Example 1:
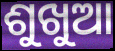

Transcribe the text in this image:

ଶୁଖୁଆ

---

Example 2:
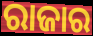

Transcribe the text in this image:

ରାଜାର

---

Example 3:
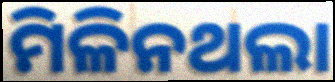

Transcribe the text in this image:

ମିଳିନଥଲା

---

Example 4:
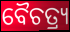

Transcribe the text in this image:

ବୈଚତ୍ର୍ୟ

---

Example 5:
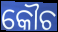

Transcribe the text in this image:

କୌଚ